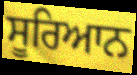
ਸੂਰਿਆਨ